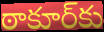
ఠాకూర్‌కు